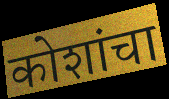
कोशांचा